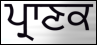
ਪ੍ਰਾਣਕ